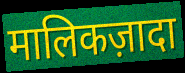
मालिकज़ादा